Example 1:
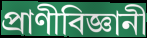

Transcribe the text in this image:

প্রাণীবিজ্ঞানী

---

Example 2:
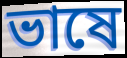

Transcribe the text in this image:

ভাষে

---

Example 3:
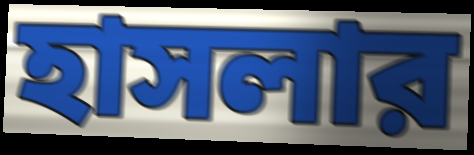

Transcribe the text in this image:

হাসলার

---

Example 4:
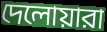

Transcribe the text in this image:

দেলোয়ারা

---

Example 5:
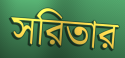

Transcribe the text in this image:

সরিতার